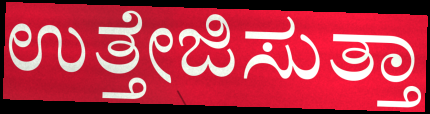
ಉತ್ತೇಜಿಸುತ್ತಾ